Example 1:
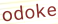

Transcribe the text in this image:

odoke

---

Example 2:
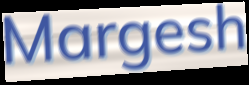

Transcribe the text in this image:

Margesh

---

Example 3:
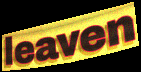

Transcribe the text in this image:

leaven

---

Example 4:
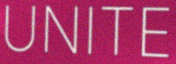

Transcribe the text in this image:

UNITE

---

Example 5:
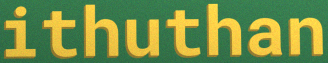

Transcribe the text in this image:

ithuthan